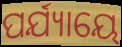
ପର୍ଯ୍ୟାୟେ